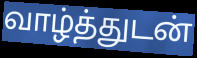
வாழ்த்துடன்